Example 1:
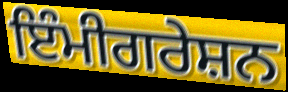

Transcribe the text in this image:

ਇੰਮੀਗਰੇਸ਼ਨ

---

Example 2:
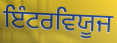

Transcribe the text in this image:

ਇੰਟਰਵਿਯੂਜ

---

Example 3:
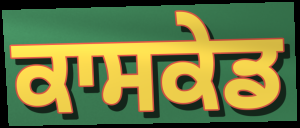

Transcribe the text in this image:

ਕਾਸਕੇਡ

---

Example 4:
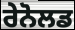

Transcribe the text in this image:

ਰੇਨੋਲਡ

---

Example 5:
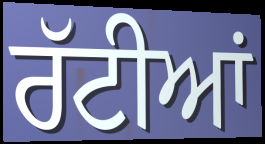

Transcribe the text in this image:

ਰੱਟੀਆਂ